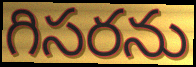
గిసరను